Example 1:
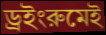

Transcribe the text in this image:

ড্রইংরুমেই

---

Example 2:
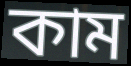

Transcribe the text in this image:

কাম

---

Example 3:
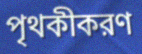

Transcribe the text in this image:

পৃথকীকরণ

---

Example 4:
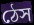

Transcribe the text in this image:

ঠেস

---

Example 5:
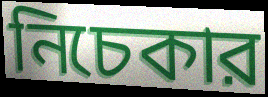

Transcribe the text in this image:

নিচেকার